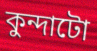
কুন্দাটো